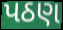
પઠણ